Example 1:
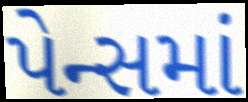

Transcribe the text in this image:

પેન્સમાં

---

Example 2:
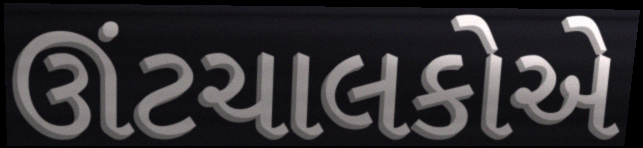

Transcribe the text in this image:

ઊંટચાલકોએ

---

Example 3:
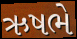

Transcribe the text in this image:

ઋષભે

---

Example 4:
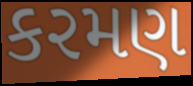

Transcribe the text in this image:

કરમણ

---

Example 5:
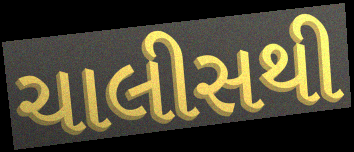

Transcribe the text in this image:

ચાલીસથી